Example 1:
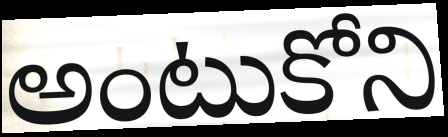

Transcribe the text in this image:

అంటుకోని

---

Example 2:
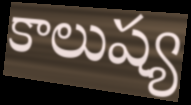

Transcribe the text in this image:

కాలుష్య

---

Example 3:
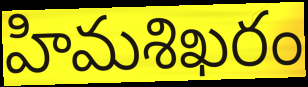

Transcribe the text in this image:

హిమశిఖరం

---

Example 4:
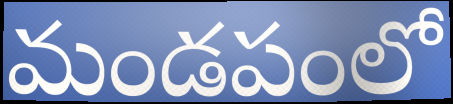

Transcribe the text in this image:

మండపంలో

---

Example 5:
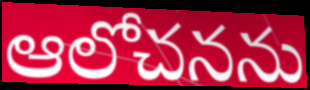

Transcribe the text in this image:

ఆలోచనను